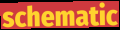
schematic